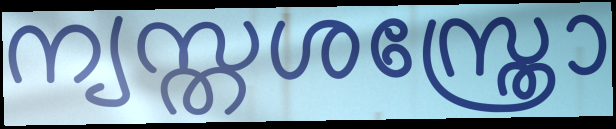
ന്യസ്തശസ്ത്രോ